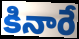
కినారే